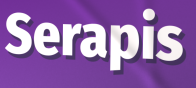
Serapis